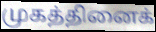
முகத்தினைக்